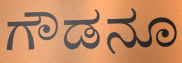
ಗೌಡನೂ